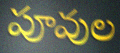
పూవుల